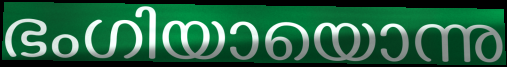
ഭംഗിയായൊന്നു